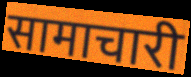
सामाचारी